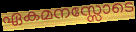
ഏകമനസ്സോടെ